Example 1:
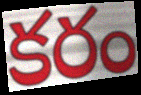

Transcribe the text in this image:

కరం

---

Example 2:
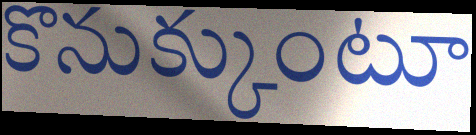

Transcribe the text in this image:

కొనుక్కుంటూ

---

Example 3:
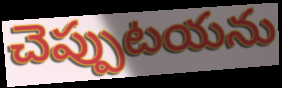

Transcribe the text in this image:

చెప్పుటయను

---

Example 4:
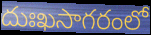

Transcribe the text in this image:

దుఃఖసాగరంలో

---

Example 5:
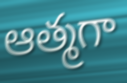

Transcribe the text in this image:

ఆత్మగా